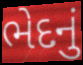
ભેદનું